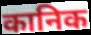
कानिक